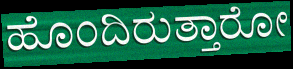
ಹೊಂದಿರುತ್ತಾರೋ